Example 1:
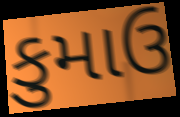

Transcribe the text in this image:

કુમાઉ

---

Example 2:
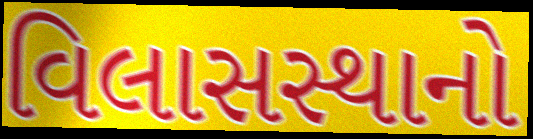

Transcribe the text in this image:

વિલાસસ્થાનો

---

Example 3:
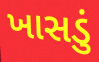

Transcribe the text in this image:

ખાસડું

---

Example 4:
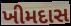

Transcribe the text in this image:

ખીમદાસ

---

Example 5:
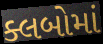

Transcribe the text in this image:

ક્લબોમાં